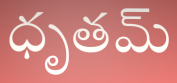
ధృతమ్